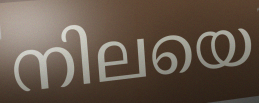
നിലയെ